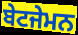
ਬੇਟਜੇਮਨ